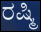
ರಷ್ಮಿ